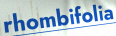
rhombifolia